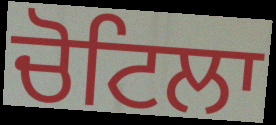
ਚੋਟਿਲਾ